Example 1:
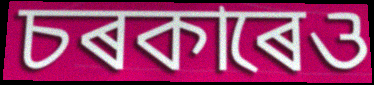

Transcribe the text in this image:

চৰকাৰেও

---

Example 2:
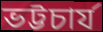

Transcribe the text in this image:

ভট্টচাৰ্য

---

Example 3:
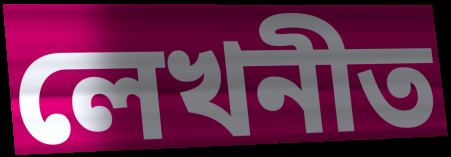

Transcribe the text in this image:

লেখনীত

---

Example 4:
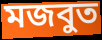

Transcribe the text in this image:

মজবুত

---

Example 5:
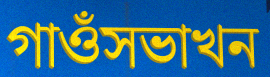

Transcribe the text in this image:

গাওঁসভাখন